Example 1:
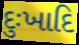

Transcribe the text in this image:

દુઃખાદિ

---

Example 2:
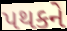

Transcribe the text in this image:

પથકને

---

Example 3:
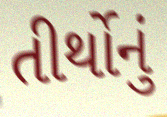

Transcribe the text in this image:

તીર્થોનું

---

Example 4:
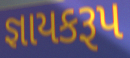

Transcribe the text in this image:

જ્ઞાયકરૂપ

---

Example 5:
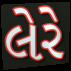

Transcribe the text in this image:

લેરે